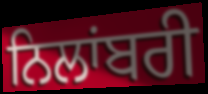
ਨਿਲਾਂਬਰੀ